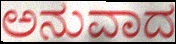
ಅನುವಾದ